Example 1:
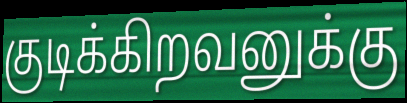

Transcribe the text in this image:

குடிக்கிறவனுக்கு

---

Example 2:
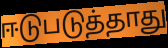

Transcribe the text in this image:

ஈடுபடுத்தாது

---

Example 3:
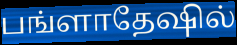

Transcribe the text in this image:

பங்ளாதேஷில்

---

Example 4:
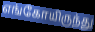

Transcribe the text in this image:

எங்கோயிருந்து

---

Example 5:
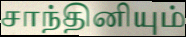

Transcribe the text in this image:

சாந்தினியும்